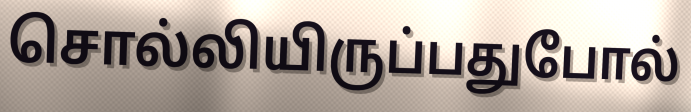
சொல்லியிருப்பதுபோல்